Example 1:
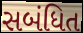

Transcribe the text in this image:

સબંધિત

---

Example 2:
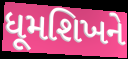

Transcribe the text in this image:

ધૂમશિખને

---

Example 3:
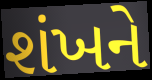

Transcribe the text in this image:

શંખને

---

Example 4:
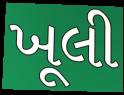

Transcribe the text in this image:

ખૂલી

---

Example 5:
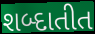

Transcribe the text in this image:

શબ્દાતીત